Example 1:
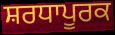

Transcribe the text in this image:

ਸ਼ਰਧਾਪੂਰਕ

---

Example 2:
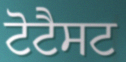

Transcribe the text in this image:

ਟੋਟੈਸਟ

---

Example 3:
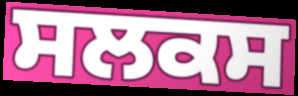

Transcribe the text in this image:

ਸਲਕਸ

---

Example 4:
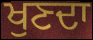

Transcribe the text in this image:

ਖੁਣਦਾ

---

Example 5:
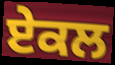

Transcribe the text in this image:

ਏਕਲ